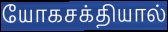
யோகசக்தியால்